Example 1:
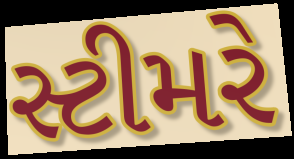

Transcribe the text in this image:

સ્ટીમરે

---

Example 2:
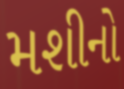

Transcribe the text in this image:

મશીનો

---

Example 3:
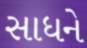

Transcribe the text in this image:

સાધને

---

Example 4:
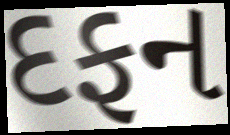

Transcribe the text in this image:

દફન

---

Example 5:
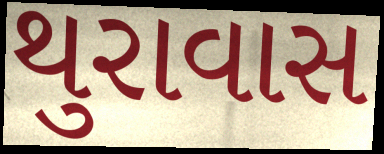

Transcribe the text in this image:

થુરાવાસ